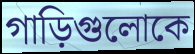
গাড়িগুলোকে